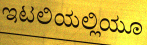
ಇಟಲಿಯಲ್ಲಿಯೂ